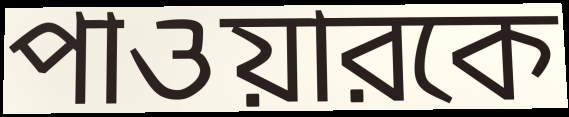
পাওয়ারকে